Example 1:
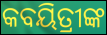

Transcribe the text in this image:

କବୟିତ୍ରୀଙ୍କ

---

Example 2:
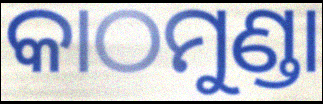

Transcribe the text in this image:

କାଠମୁଣ୍ଡା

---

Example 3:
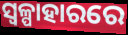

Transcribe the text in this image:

ସ୍ୱଳ୍ପାହାରରେ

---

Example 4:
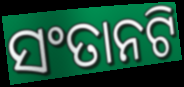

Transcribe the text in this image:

ସଂତାନଟି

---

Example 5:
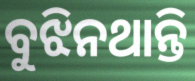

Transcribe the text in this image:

ବୁଝିନଥାନ୍ତି